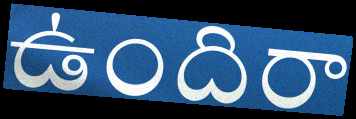
ఉందిరా